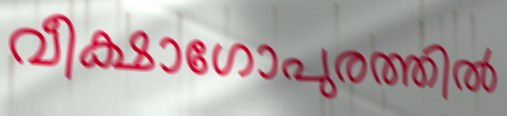
വീക്ഷാഗോപുരത്തിൽ